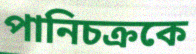
পানিচক্রকে